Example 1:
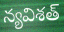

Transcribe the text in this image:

న్యవిశత్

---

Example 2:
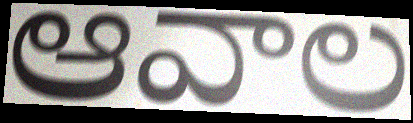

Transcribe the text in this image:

ఆవాల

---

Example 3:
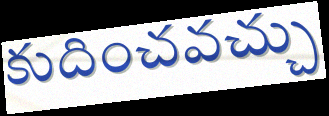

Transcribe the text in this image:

కుదించవచ్చు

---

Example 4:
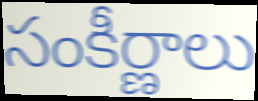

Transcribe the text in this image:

సంకీర్ణాలు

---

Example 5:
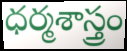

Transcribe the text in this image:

ధర్మశాస్త్రం